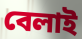
বেলাই